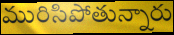
మురిసిపోతున్నారు